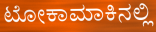
ಟೋಕಾಮಾಕಿನಲ್ಲಿ